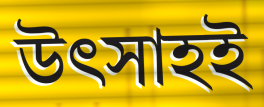
উৎসাহই